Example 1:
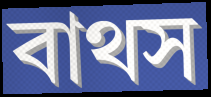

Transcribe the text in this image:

বাথস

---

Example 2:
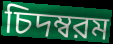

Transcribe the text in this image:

চিদম্বরম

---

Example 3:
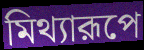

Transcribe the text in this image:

মিথ্যারূপে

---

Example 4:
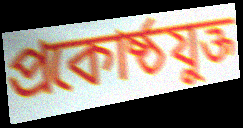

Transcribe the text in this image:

প্রকোষ্ঠযুক্ত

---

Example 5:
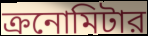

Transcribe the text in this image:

ক্রনোমিটার